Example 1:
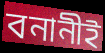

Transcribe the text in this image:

বনানীই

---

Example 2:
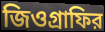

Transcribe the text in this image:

জিওগ্রাফির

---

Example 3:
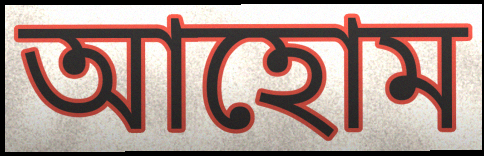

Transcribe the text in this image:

আহোম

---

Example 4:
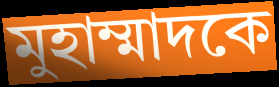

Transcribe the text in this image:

মুহাম্মাদকে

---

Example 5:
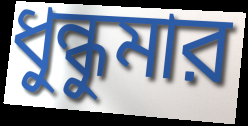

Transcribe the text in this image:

ধুন্ধুমার